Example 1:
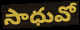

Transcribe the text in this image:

సాధువో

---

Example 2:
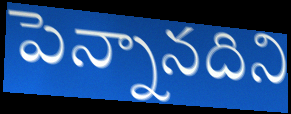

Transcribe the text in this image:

పెన్నానదిని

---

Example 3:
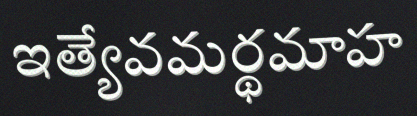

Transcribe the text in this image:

ఇత్యేవమర్థమాహ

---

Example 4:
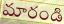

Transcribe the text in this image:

మారండి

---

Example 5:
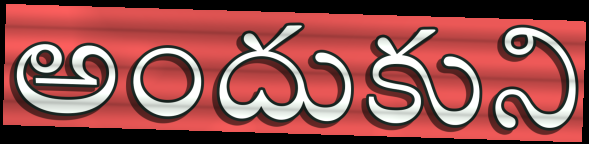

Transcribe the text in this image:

అందుకుని